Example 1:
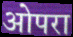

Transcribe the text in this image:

ओपरा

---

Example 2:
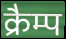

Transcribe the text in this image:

क्रैम्प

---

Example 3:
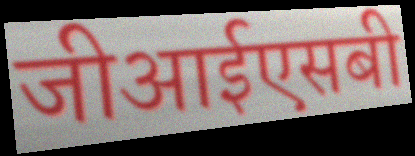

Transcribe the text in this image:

जीआईएसबी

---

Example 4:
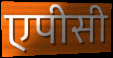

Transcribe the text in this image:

एपीसी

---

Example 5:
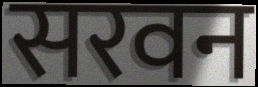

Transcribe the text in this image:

सरवन